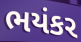
ભયંકર